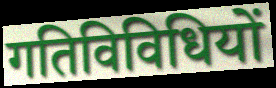
गतिविविधियों